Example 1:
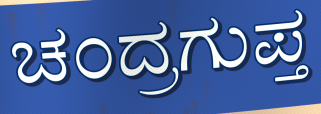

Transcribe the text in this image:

ಚಂದ್ರಗುಪ್ತ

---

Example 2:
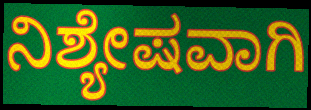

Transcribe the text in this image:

ನಿಶ್ಯೇಷವಾಗಿ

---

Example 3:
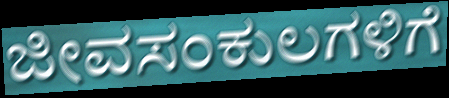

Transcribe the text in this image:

ಜೀವಸಂಕುಲಗಳಿಗೆ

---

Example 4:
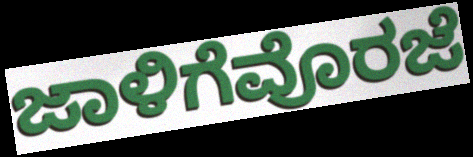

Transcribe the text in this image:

ಜಾಳಿಗೆವೊರಜೆ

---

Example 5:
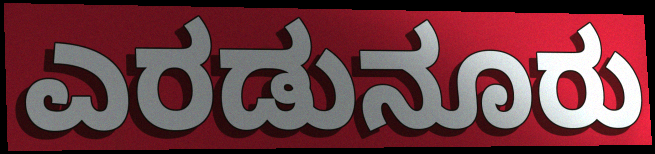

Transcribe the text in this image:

ಎರಡುನೂರು